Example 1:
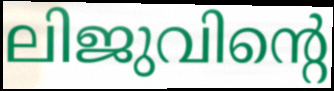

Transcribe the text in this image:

ലിജുവിന്റെ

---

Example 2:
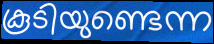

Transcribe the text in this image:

കൂടിയുണ്ടെന്ന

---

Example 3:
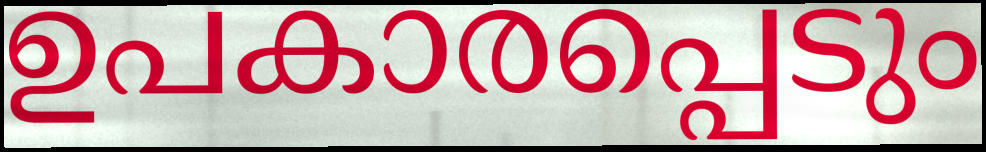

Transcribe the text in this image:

ഉപകാരപ്പെടും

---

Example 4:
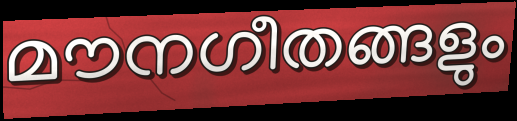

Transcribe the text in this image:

മൗനഗീതങ്ങളും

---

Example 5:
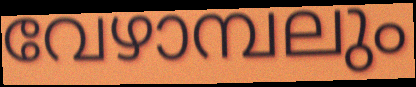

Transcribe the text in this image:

വേഴാമ്പലും